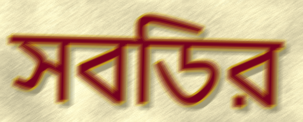
সবডির